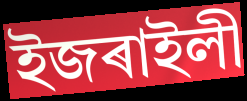
ইজৰাইলী